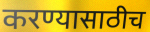
करण्यासाठीच